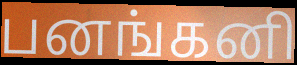
பனங்கனி